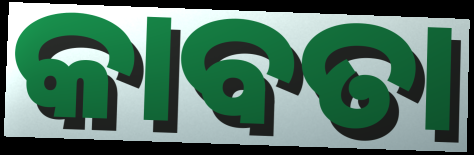
କାବତା